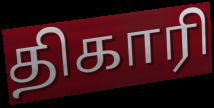
திகாரி